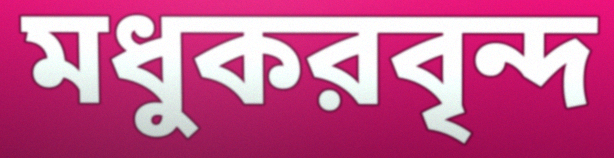
মধুকরবৃন্দ